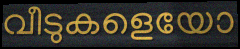
വീടുകളെയോ